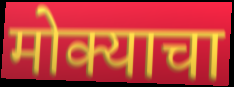
मोक्याचा